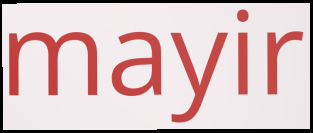
mayir